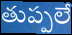
తుప్పలే